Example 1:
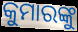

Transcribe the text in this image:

କୁମାରଙ୍କୁ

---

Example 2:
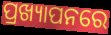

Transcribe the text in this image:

ପ୍ରଖ୍ୟାପନରେ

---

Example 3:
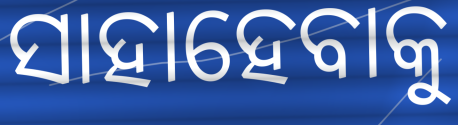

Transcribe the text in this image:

ସାହାହେବାକୁ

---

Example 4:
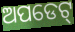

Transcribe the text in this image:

ଅପଡେଟ୍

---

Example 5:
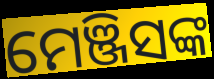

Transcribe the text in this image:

ମେଞ୍ଜିସଙ୍କ